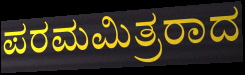
ಪರಮಮಿತ್ರರಾದ